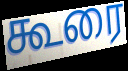
கூரை